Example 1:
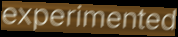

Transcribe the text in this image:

experimented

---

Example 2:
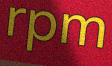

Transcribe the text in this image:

rpm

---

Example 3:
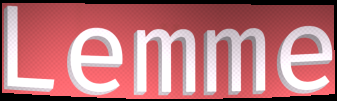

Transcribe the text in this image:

Lemme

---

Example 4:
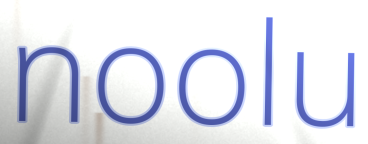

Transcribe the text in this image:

noolu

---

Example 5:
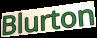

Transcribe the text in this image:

Blurton